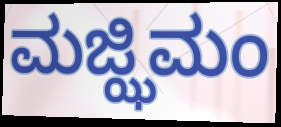
ಮಜ್ಝಿಮಂ